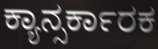
ಕ್ಯಾನ್ಸರ್ಕಾರಕ